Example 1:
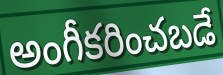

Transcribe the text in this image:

అంగీకరించబడే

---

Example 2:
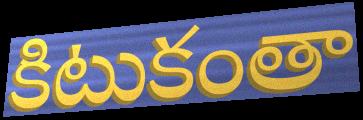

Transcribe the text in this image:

కిటుకంతా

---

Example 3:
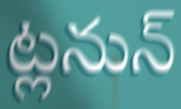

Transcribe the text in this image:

ట్లనున్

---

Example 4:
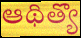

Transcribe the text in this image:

ఆథిత్యొ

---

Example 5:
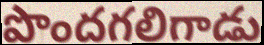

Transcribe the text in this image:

పొందగలిగాడు